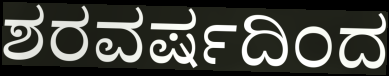
ಶರವರ್ಷದಿಂದ